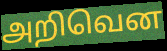
அறிவென